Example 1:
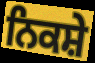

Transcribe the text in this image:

ਨਿਕਸ਼ੇ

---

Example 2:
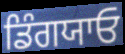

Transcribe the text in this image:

ਡਿੰਗਯਾਓ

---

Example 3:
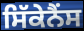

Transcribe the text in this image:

ਸਿੱਕੇਨੈਂਸ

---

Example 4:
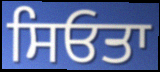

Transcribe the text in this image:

ਸਿਓਤਾ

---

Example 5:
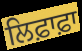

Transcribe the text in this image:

ਲਿਫ਼ਾਫ਼ਾ